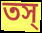
তস্